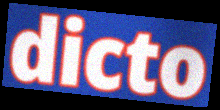
dicto